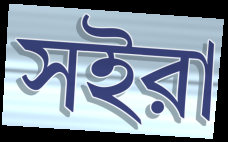
সইরা